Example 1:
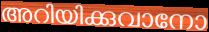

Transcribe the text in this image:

അറിയിക്കുവാനോ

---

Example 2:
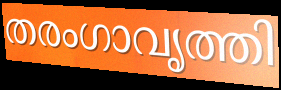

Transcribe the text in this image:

തരംഗാവൃത്തി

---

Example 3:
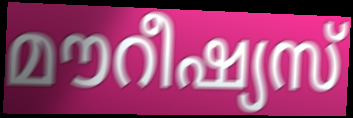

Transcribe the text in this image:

മൗറീഷ്യസ്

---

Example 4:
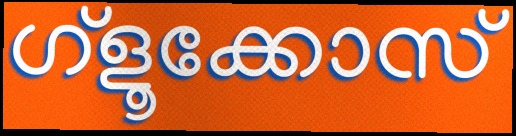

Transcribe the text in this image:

ഗ്ളൂക്കോസ്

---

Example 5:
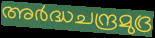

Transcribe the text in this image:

അർദ്ധചന്ദ്രമുദ്ര